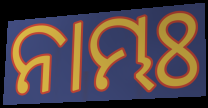
ନାମ୍ଭଃ